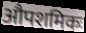
औपशमिकः